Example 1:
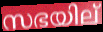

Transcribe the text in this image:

സഭയില്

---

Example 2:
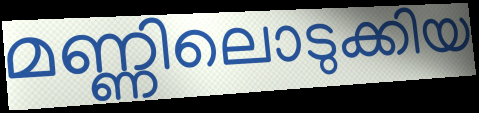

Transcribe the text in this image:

മണ്ണിലൊടുക്കിയ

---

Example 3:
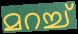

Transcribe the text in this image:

മറച്ച്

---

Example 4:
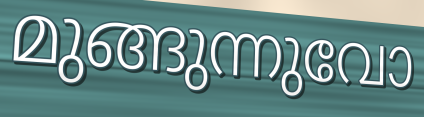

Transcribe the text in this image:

മുങ്ങുന്നുവോ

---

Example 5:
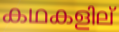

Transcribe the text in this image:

കഥകളില്